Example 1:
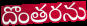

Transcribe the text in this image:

దొంతరను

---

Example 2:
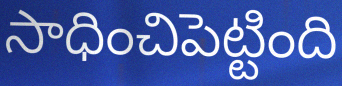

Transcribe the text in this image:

సాధించిపెట్టింది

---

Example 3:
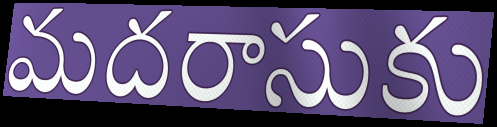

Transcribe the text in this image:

మదరాసుకు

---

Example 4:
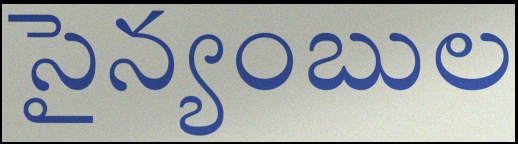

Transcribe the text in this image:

సైన్యంబుల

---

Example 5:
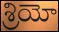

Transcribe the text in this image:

శ్రియో